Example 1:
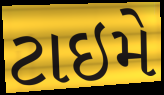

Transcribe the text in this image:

ટાઇમે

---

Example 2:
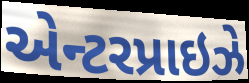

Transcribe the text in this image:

એન્ટરપ્રાઇઝે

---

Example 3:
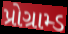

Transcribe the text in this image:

પ્રોગ્રામ્ડ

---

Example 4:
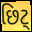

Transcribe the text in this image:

છિટ્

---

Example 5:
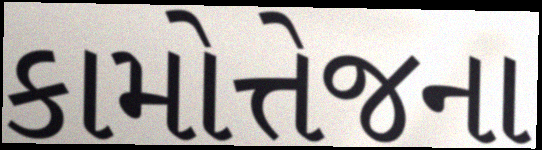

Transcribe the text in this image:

કામોત્તેજના